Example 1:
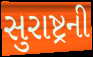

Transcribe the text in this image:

સુરાષ્ટ્રની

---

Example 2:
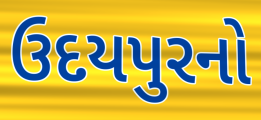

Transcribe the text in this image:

ઉદયપુરનો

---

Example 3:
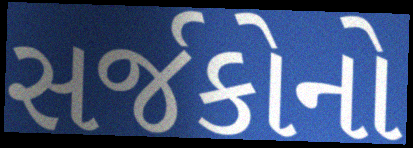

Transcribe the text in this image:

સર્જકોનો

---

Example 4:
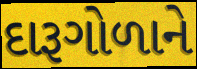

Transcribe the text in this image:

દારૂગોળાને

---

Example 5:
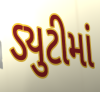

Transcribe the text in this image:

ડ્યુટીમાં